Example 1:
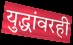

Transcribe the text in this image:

युद्धांवरही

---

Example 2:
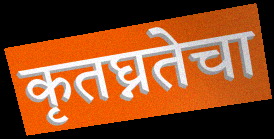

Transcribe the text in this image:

कृतघ्नतेचा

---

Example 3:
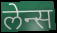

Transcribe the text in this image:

लेन्स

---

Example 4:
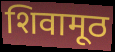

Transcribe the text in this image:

शिवामूठ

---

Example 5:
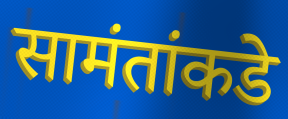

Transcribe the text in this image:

सामंतांकडे